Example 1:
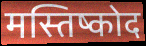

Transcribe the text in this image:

मस्तिष्कोद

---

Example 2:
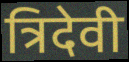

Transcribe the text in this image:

त्रिदेवी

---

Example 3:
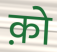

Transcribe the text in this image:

क़ो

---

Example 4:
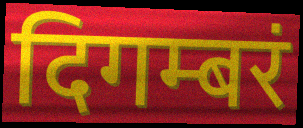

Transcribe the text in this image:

दिगम्बरं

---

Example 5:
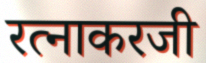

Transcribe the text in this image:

रत्नाकरजी